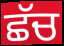
ਛੱਚ